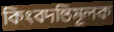
কিংবদন্তিমূলক